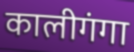
कालीगंगा